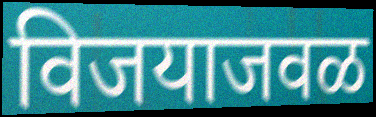
विजयाजवळ